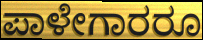
ಪಾಳೇಗಾರರೂ